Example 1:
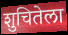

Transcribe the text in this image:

शुचितेला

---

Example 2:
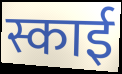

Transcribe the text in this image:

स्काई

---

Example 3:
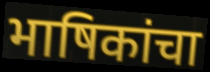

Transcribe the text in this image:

भाषिकांचा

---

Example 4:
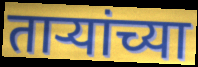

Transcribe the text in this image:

तार्‍यांच्या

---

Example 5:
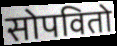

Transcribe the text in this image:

सोपवितो